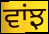
ਵਾਂਝ